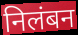
निलंबन